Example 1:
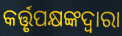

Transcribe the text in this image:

କର୍ତ୍ତୃପକ୍ଷଙ୍କଦ୍ଵାରା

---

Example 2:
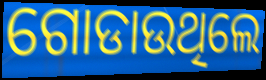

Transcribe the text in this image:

ଗୋଡାଉଥିଲେ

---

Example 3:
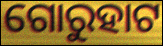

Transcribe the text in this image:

ଗୋରୁହାଟ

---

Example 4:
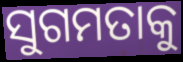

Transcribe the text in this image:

ସୁଗମତାକୁ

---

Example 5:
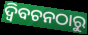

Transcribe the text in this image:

ଦ୍ବିବଚନଠାରୁ